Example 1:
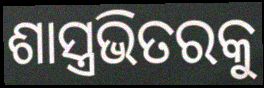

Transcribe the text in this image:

ଶାସ୍ତ୍ରଭିତରକୁ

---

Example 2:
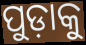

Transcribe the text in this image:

ପୁଡ଼ାକୁ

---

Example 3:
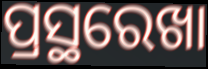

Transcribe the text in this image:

ପ୍ରସ୍ଥରେଖା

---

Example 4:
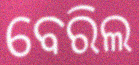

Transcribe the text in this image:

ବେରିଲ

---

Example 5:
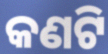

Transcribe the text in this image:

କଣଟି